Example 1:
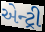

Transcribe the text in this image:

એન્‍ટ્રી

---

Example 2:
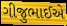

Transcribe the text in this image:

ગીજુભાઈએ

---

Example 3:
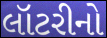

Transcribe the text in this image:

લૉટરીનો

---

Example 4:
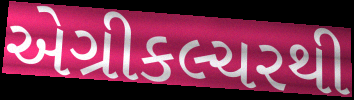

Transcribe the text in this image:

એગ્રીકલ્ચરથી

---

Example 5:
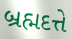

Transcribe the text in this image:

બ્રહ્મદત્તે